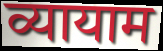
व्यायाम